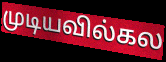
முடியவில்கல